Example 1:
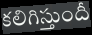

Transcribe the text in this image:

కలిగిస్తుందీ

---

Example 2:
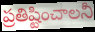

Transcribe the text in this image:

ప్రతిష్టించాలనీ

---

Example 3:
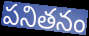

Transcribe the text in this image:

పనితనం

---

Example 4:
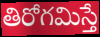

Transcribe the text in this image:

తిరోగమిస్తే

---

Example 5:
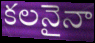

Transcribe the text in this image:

కలనైనా